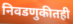
निवडणुकीतही